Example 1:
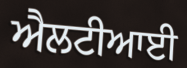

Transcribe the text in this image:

ਐਲਟੀਆਈ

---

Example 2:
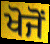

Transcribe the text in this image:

ਖੋਜੋਂ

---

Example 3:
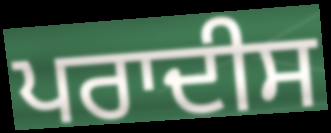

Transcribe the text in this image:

ਪਰਾਦੀਸ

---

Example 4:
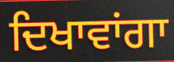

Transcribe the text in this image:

ਦਿਖਾਵਾਂਗਾ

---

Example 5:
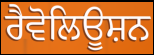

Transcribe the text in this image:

ਰੈਵੋਲਿਊਸ਼ਨ